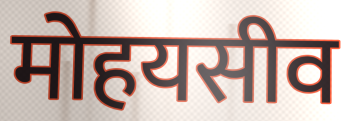
मोहयसीव